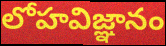
లోహవిజ్ఞానం